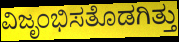
ವಿಜೃಂಭಿಸತೊಡಗಿತ್ತು